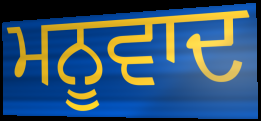
ਮਨੂਵਾਦ